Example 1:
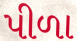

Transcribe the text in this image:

પીળા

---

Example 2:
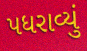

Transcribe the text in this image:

પધરાવ્યું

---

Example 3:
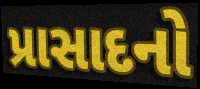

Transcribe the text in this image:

પ્રાસાદનો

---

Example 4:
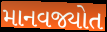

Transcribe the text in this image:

માનવજ્યોત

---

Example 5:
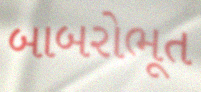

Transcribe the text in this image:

બાબરોભૂત